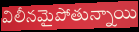
విలీనమైపోతున్నాయి